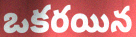
ఒకరయిన